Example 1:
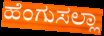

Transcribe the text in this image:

ಹೆಂಗುಸಲ್ಲಾ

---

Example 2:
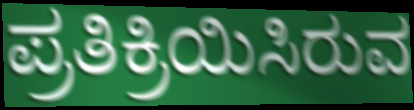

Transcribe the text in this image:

ಪ್ರತಿಕ್ರಿಯಿಸಿರುವ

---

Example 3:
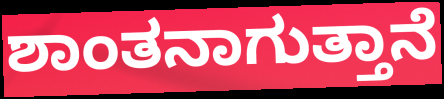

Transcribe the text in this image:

ಶಾಂತನಾಗುತ್ತಾನೆ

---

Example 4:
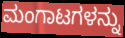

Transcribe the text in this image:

ಮಂಗಾಟಗಳನ್ನು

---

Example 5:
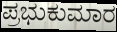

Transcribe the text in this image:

ಪ್ರಭುಕುಮಾರ